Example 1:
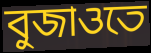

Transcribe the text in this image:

বুজাওতে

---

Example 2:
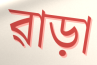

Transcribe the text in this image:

ৱাড়া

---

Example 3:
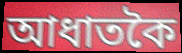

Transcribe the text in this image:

আধাতকৈ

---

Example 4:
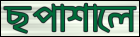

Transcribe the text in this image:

ছপাশালে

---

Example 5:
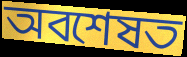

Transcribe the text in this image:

অবশেষত